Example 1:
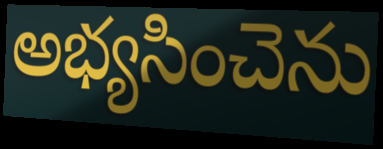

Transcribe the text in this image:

అభ్యసించెను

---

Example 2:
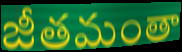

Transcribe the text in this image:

జీతమంతా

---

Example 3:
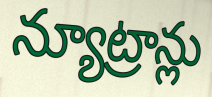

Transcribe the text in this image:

న్యూట్రాన్లు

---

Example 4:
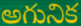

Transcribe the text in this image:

అగునిక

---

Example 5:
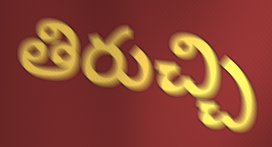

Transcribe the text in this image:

తిరుచ్చి